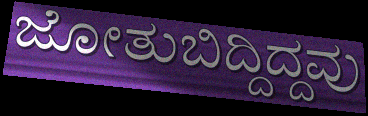
ಜೋತುಬಿದ್ದಿದ್ದವು